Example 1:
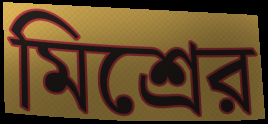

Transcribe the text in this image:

মিশ্রের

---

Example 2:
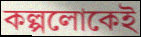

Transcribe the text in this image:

কল্পলোকেই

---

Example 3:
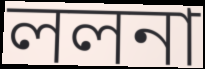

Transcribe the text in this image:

ললনা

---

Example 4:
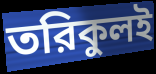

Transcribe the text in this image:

তরিকুলই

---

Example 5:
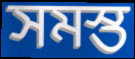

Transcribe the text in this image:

সমস্ত